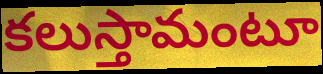
కలుస్తామంటూ